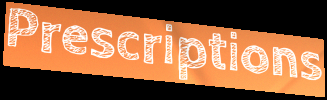
Prescriptions